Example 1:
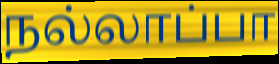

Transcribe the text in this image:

நல்லாப்பா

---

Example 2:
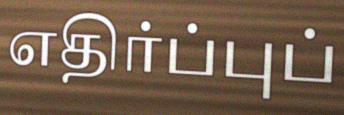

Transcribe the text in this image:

எதிர்ப்புப்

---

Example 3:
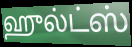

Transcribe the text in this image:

ஹுல்ட்ஸ்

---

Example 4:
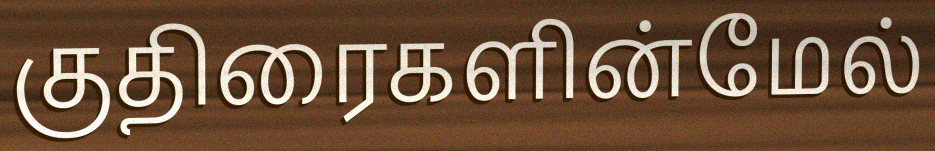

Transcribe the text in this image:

குதிரைகளின்மேல்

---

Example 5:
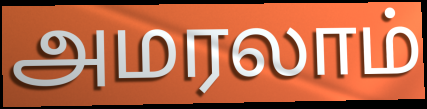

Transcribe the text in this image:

அமரலாம்